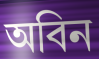
অবিন